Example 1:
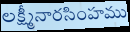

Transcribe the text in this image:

లక్ష్మీనారసింహము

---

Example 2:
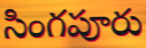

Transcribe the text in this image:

సింగపూరు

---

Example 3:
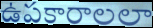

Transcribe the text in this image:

ఉపకారాలలా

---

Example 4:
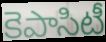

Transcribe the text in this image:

కెపాసిటీ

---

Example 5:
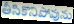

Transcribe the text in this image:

తీసికొనిపోవును